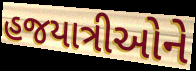
હજયાત્રીઓને